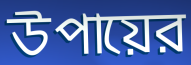
উপায়ের